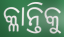
କ୍ଳାନ୍ତିକୁ